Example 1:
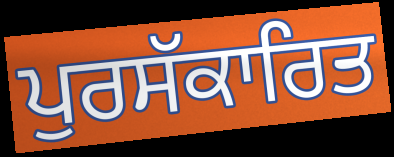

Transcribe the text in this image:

ਪੁਰਸੱਕਾਰਿਤ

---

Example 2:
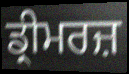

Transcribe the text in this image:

ਡ੍ਰੀਮਰਜ਼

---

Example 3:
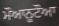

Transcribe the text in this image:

ਮੌਆਨੂਟੌਆ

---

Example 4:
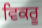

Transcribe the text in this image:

ਵਿਕਰੂ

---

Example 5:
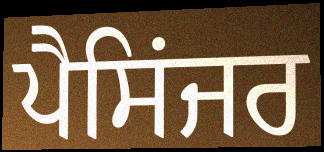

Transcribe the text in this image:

ਪੈਸਿਂਜਰ